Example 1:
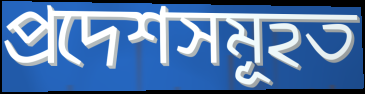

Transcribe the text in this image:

প্ৰদেশসমূহত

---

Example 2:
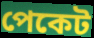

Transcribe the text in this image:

পেকেট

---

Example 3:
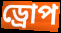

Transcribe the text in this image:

ড্ৰোপ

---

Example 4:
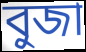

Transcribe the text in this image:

বুজা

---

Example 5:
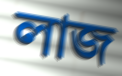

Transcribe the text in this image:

লাজ